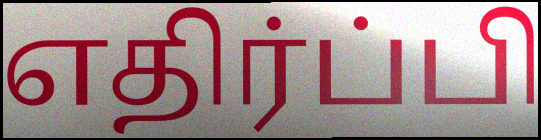
எதிர்ப்பி